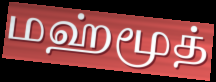
மஹ்மூத்